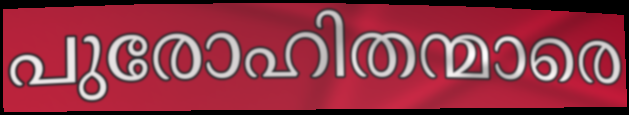
പുരോഹിതന്മാരെ